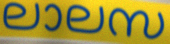
ലാലസ